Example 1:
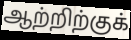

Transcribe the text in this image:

ஆற்றிற்குக்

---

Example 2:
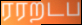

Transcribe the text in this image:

ரரறடப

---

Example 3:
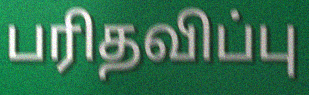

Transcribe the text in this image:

பரிதவிப்பு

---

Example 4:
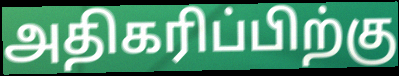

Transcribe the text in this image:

அதிகரிப்பிற்கு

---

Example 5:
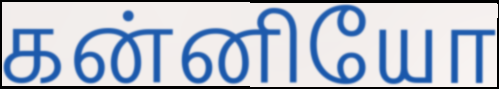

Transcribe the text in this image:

கன்னியோ